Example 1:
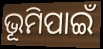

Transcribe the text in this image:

ଭୂମିପାଇଁ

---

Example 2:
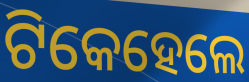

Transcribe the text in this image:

ଟିକେହେଲେ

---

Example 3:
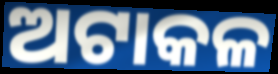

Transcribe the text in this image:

ଅଟାକଳ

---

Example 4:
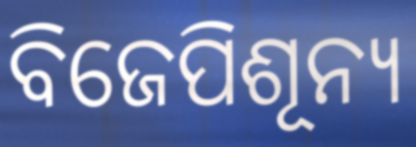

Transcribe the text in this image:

ବିଜେପିଶୂନ୍ୟ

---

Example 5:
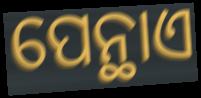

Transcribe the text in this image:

ପେନ୍ଥାଏ